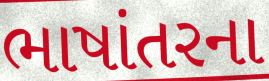
ભાષાંતરના